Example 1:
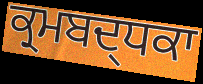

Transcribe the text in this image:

ਕ੍ਰਮਬਦ੍ਧਕਾ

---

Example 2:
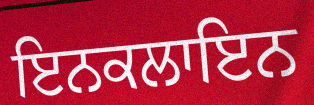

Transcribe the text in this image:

ਇਨਕਲਾਇਨ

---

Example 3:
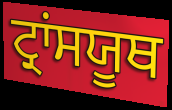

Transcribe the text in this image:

ਟ੍ਰਾਂਸਯੂਥ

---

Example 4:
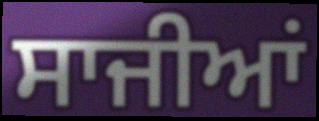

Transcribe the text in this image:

ਸਾਜੀਆਂ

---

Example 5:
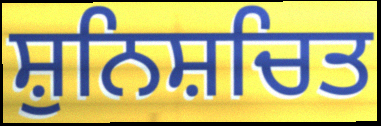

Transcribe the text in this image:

ਸ਼ੁਨਿਸ਼ਚਿਤ